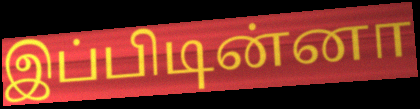
இப்பிடின்னா